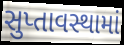
સુપ્તાવસ્થામાં